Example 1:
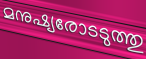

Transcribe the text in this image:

മനുഷ്യരോടടുത്തു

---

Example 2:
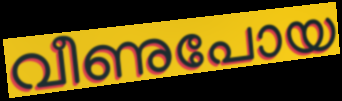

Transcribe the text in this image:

വീണുപോയ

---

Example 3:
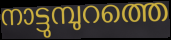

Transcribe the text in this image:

നാട്ടുമ്പുറത്തെ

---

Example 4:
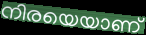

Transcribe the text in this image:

നിരയെയാണ്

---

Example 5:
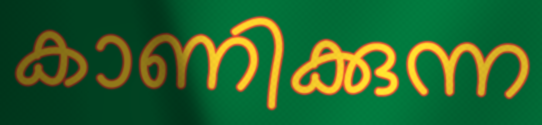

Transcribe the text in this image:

കാണിക്കുന്ന